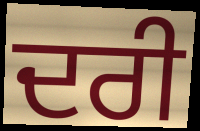
ਦਰੀ